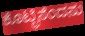
ಕೊಟ್ಟೆನೆಂದನು